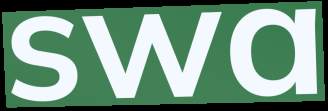
swa